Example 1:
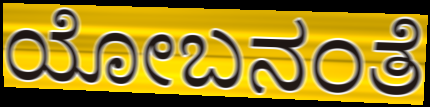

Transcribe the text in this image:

ಯೋಬನಂತೆ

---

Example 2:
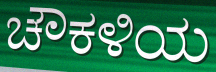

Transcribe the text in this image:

ಚೌಕಳಿಯ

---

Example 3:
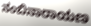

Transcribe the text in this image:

ನಂಬಿನಾರಾಯಣ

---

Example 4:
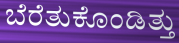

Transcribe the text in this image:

ಬೆರೆತುಕೊಂಡಿತ್ತು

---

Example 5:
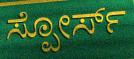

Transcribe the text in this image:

ಸ್ಪೋರ್ಸ್